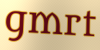
gmrt